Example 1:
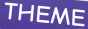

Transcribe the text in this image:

THEME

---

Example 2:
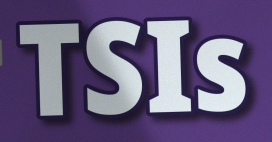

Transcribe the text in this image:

TSIs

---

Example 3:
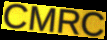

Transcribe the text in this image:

CMRC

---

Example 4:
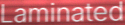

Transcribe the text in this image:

Laminated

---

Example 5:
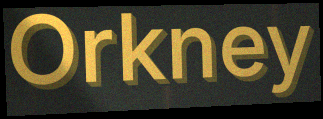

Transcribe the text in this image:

Orkney